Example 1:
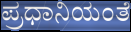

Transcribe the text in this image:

ಪ್ರಧಾನಿಯಂತೆ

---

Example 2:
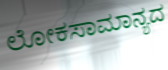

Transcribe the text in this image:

ಲೋಕಸಾಮಾನ್ಯದ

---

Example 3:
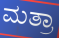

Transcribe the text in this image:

ಮತ್ರಾ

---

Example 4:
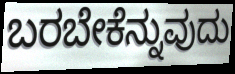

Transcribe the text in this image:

ಬರಬೇಕೆನ್ನುವುದು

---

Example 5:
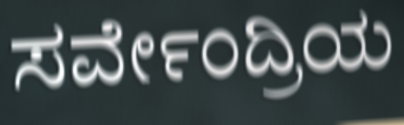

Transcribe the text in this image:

ಸರ್ವೇಂದ್ರಿಯ